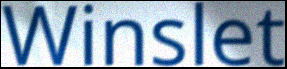
Winslet